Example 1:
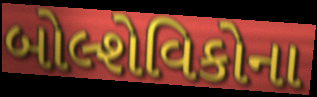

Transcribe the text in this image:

બોલ્શેવિકોના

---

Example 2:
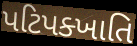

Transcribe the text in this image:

પટિપક્ખાતિ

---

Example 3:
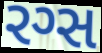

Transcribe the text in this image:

રગ્સ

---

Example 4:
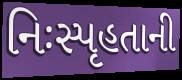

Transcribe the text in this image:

નિઃસ્પૃહતાની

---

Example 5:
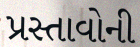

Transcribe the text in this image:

પ્રસ્તાવોની